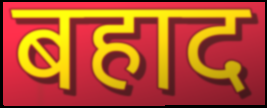
बहाद